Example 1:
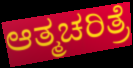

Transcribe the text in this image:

ಆತ್ಮಚರಿತ್ರೆ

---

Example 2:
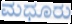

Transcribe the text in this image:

ಮಧೂರು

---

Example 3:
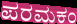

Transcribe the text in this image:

ಪರಮಕಂ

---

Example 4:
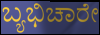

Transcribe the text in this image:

ಬ್ಯಭಿಚಾರೇ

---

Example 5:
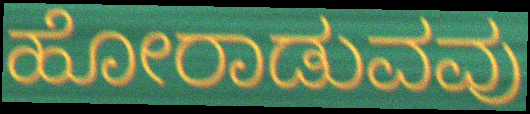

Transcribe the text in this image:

ಹೋರಾಡುವವು